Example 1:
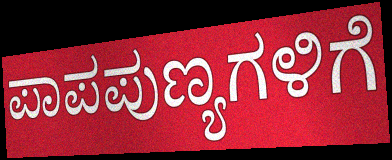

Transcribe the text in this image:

ಪಾಪಪುಣ್ಯಗಳಿಗೆ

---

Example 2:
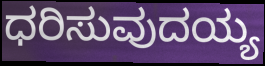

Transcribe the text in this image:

ಧರಿಸುವುದಯ್ಯ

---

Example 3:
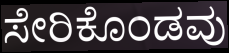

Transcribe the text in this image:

ಸೇರಿಕೊಂಡವು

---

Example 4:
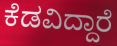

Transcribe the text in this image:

ಕೆಡವಿದ್ದಾರೆ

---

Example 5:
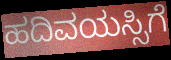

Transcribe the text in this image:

ಹದಿವಯಸ್ಸಿಗೆ